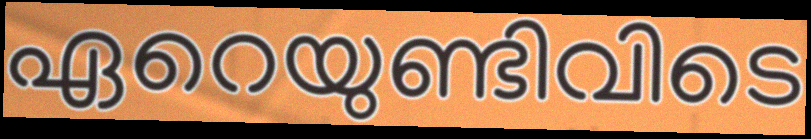
ഏറെയുണ്ടിവിടെ